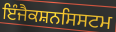
ਇੰਜੈਕਸ਼ਨਸਿਸਟਮ